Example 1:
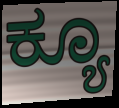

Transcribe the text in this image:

ಕ್ಯೂ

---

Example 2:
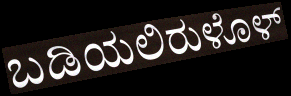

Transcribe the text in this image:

ಬಡಿಯಲಿರುಳೊಳ್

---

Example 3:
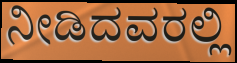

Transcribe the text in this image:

ನೀಡಿದವರಲ್ಲಿ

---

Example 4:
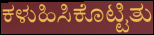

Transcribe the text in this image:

ಕಳುಹಿಸಿಕೊಟ್ಟಿತು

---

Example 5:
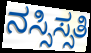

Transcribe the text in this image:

ನಸ್ಸಿಸ್ಸತಿ